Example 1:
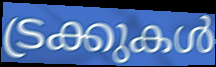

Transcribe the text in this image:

ട്രക്കുകൾ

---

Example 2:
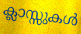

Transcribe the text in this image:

ക്ലാസ്സുകൾ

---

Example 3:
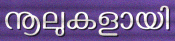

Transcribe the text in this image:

നൂലുകളായി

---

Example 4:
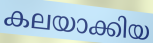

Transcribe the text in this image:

കലയാക്കിയ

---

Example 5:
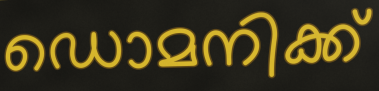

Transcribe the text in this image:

ഡൊമനിക്ക്